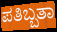
ಪತಿಬ್ಬತಾ